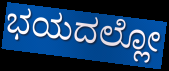
ಭಯದಲ್ಲೋ